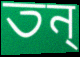
তন্